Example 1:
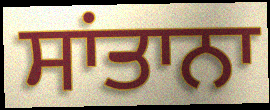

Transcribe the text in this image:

ਸਾਂਤਾਨਾ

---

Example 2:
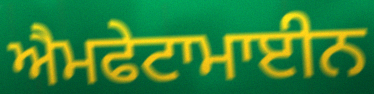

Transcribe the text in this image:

ਐਮਫੇਟਾਮਾਈਨ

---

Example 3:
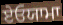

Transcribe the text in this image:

ਏਓਯਾਮਾ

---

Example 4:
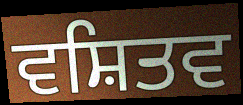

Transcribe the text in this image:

ਵਸ਼ਿਤਵ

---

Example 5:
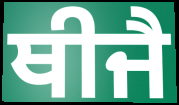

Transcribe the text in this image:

ਥੀਜੈ